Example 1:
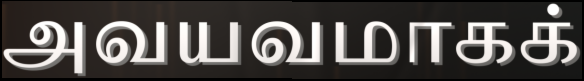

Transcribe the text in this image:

அவயவமாகக்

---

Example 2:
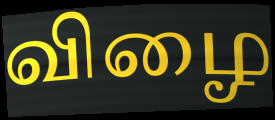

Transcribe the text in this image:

விழை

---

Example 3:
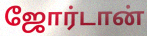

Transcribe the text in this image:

ஜோர்டான்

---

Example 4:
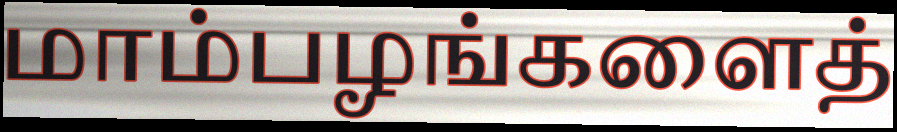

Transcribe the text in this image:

மாம்பழங்களைத்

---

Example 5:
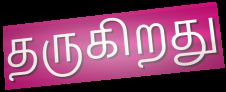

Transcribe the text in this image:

தருகிறது